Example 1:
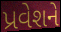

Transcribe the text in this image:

પ્રવેશને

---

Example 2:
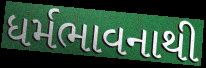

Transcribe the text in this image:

ધર્મભાવનાથી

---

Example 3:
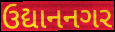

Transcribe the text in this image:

ઉદ્યાનનગર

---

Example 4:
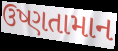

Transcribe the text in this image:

ઉષ્ણતામાન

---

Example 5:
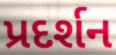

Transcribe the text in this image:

પ્રદર્શન